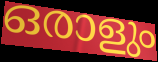
ഒരാളും